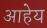
आहेय